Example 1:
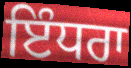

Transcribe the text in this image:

ਇੰਧਰਾ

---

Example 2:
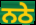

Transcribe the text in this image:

ਨਠੇ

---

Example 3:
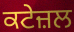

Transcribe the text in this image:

ਕਟੇਜ਼ਲ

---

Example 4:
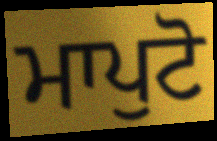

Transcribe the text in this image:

ਮਾਪੁਟੋ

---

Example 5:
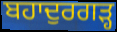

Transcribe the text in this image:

ਬਹਾਦੁਰਗੜ੍ਹ